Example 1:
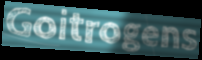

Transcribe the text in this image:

Goitrogens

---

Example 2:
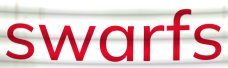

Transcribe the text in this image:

swarfs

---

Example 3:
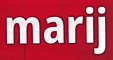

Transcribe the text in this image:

marij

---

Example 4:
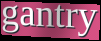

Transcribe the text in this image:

gantry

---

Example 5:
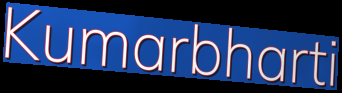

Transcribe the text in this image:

Kumarbharti